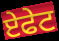
ਏਫੇਟ